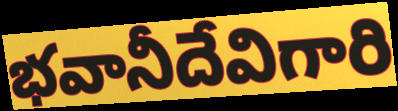
భవానీదేవిగారి